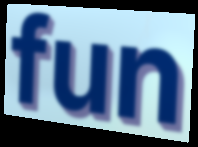
fun